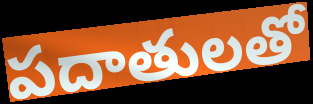
పదాతులతో